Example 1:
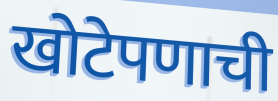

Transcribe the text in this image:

खोटेपणाची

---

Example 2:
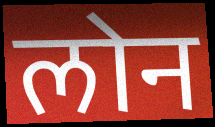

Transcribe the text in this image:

लोन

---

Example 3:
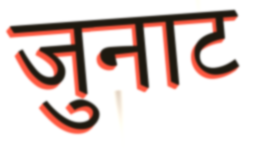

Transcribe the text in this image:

जुनाट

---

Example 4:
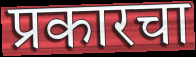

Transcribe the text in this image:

प्रकारचा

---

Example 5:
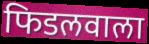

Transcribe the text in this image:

फिडलवाला